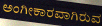
ಅಂಗೀಕಾರವಾಗಿರುವ